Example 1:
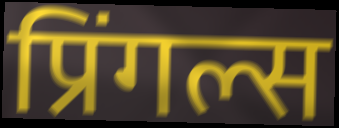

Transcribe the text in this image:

प्रिंगल्स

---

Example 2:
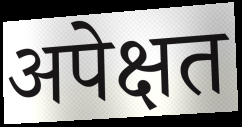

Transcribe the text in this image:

अपेक्षत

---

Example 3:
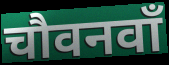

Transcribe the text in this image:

चौवनवाँ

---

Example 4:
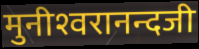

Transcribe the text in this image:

मुनीश्वरानन्दजी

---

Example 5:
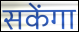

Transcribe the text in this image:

सकेंगा